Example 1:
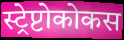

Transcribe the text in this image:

स्ट्रेप्टोकोकस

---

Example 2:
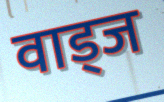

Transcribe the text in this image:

वाड्ज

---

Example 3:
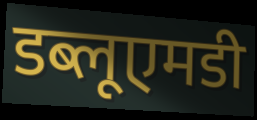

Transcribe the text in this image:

डब्लूएमडी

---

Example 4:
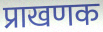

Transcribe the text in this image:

प्राखणक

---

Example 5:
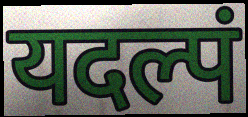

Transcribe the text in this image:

यदल्पं